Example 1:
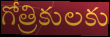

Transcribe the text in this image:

గోత్రికులకు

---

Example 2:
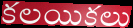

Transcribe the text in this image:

కలయికలు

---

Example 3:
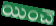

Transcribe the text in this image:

యించె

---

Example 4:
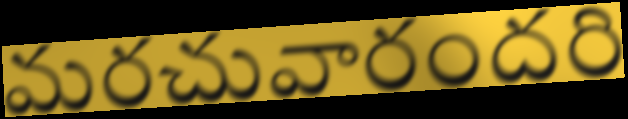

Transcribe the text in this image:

మరచువారందరి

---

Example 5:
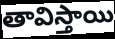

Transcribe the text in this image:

తావిస్తాయి